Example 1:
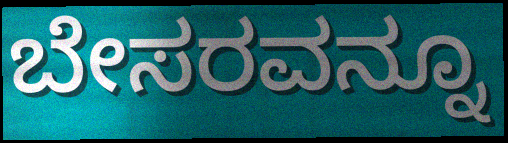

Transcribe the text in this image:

ಬೇಸರವನ್ನೂ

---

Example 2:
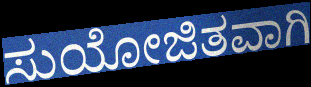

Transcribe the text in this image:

ಸುಯೋಜಿತವಾಗಿ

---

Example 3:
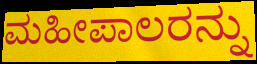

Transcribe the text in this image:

ಮಹೀಪಾಲರನ್ನು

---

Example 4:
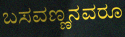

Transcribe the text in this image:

ಬಸವಣ್ಣನವರೂ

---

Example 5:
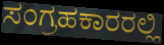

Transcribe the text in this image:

ಸಂಗ್ರಹಕಾರರಲ್ಲಿ